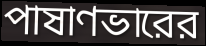
পাষাণভারের